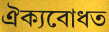
ঐক্যবোধত